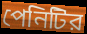
পেনিটির